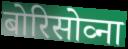
बोरिसोव्ना